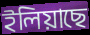
ইলিয়াছে